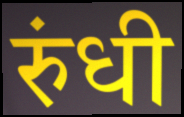
रुंधी